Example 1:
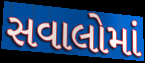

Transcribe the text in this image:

સવાલોમાં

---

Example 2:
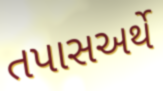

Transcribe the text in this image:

તપાસઅર્થે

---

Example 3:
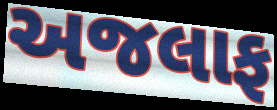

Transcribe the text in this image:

અજલાફ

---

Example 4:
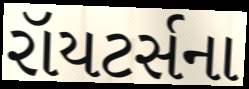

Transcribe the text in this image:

રૉયટર્સના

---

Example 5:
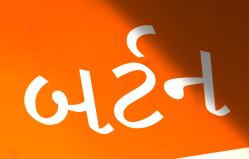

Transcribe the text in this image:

બર્ટન